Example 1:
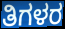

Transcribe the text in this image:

ತಿಗಳರ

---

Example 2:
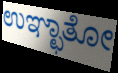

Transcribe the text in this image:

ಉಞ್ಛಾತೋ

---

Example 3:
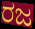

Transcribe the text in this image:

ರಜ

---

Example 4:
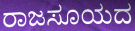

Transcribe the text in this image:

ರಾಜಸೂಯದ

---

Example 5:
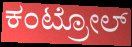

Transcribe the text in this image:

ಕಂಟ್ರೋಲ್